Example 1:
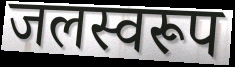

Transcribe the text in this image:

जलस्वरूप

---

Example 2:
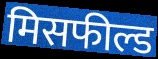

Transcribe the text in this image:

मिसफील्ड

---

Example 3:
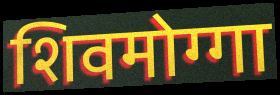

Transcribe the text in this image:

शिवमोग्गा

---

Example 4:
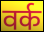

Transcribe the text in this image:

वर्क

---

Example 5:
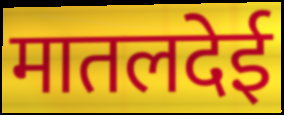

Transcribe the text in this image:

मातलदेई